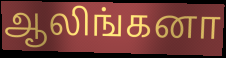
ஆலிங்கனா